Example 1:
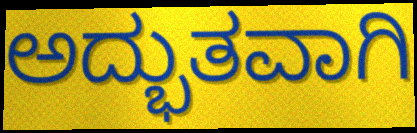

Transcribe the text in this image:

ಅದ್ಭುತವಾಗಿ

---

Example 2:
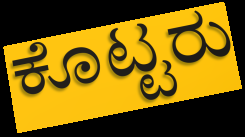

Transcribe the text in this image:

ಕೊಟ್ಟರು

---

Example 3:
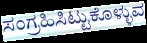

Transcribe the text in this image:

ಸಂಗ್ರಹಿಸಿಟ್ಟುಕೊಳ್ಳುವ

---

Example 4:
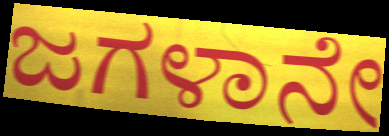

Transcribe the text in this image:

ಜಗಳಾನೇ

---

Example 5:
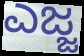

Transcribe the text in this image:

ಎಜ್ಜ